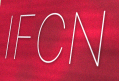
IFCN